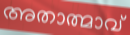
അതാത്മാവ്